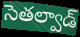
సెతల్వాడ్